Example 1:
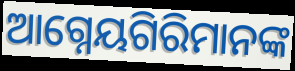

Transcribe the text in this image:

ଆଗ୍ନେୟଗିରିମାନଙ୍କ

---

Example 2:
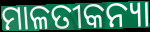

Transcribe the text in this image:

ମାଳତୀକନ୍ୟା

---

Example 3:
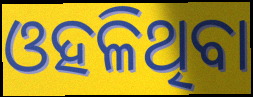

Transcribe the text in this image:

ଓହଳିଥିବା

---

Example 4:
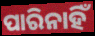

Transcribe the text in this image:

ପାରିନାହିଁ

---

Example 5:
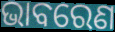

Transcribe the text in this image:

ଭାବରେଣ